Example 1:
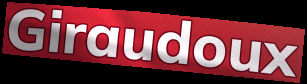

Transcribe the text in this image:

Giraudoux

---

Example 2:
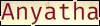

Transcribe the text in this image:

Anyatha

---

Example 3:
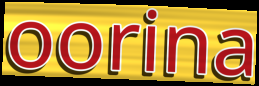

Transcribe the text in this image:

oorina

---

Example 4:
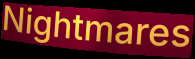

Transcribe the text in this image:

Nightmares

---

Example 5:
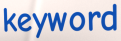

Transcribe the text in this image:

keyword